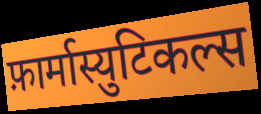
फ़ार्मास्युटिकल्स